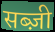
सब्ज़ी